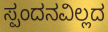
ಸ್ಪಂದನವಿಲ್ಲದ